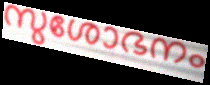
സുശോഭനം